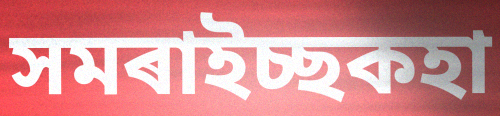
সমৰাইচ্ছকহা